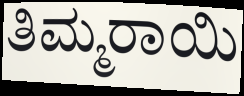
ತಿಮ್ಮರಾಯಿ